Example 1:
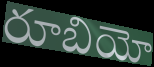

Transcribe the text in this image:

రూబియో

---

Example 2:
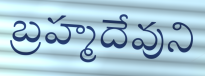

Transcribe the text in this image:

బ్రహ్మదేవుని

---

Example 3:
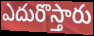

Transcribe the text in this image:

ఎదురొస్తారు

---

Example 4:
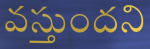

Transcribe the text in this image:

వస్తుందని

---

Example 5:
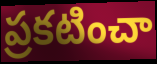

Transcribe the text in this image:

ప్రకటించా